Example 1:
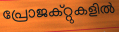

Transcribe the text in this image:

പ്രോജക്റ്റുകളിൽ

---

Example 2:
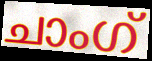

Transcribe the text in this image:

ചാംഗ്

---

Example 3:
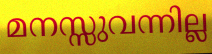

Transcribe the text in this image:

മനസ്സുവന്നില്ല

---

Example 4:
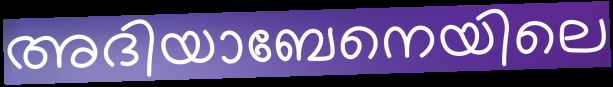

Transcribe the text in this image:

അദിയാബേനെയിലെ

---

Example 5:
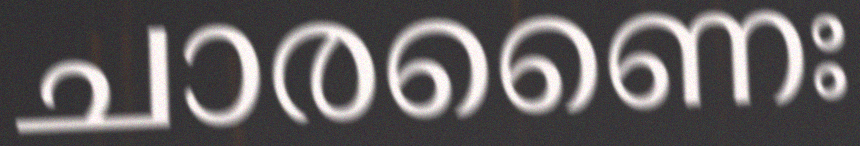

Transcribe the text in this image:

ചാരണൈഃ